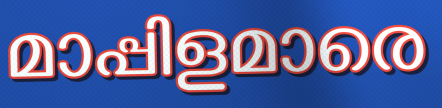
മാപ്പിളമാരെ